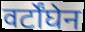
वर्टोंघेन